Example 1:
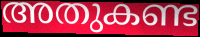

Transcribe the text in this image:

അതുകണ്ട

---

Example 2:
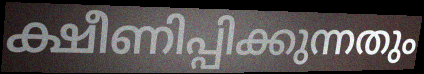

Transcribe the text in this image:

ക്ഷീണിപ്പിക്കുന്നതും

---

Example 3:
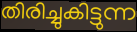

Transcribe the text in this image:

തിരിച്ചുകിട്ടുന്ന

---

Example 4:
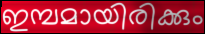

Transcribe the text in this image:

ഇമ്പമായിരിക്കും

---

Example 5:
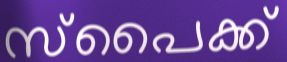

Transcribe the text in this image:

സ്പൈക്ക്